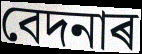
বেদনাৰ